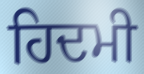
ਹਿਦਮੀ